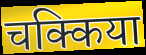
चक्किया